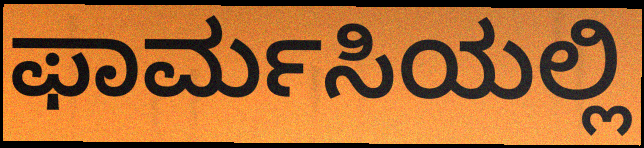
ಫಾರ್ಮಸಿಯಲ್ಲಿ